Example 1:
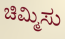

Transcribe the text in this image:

ಚಿಮ್ಮಿಸು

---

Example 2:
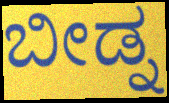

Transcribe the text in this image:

ಬೀಡ್ನ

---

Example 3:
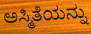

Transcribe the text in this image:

ಅಸ್ಮಿತೆಯನ್ನು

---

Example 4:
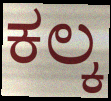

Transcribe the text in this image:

ಕಲ್ಕ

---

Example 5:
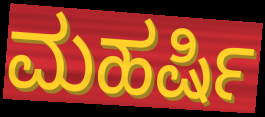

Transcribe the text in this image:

ಮಹರ್ಷಿ